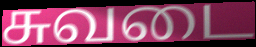
சுவடை